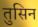
तुसिन